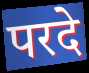
परदे